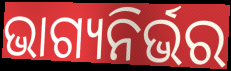
ଭାଗ୍ୟନିର୍ଭର